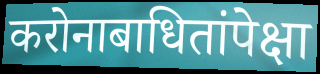
करोनाबाधितांपेक्षा